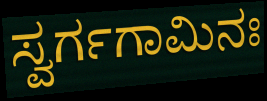
ಸ್ವರ್ಗಗಾಮಿನಃ